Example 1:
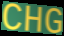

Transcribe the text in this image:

CHG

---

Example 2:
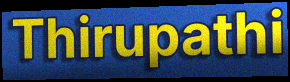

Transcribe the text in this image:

Thirupathi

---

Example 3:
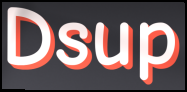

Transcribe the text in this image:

Dsup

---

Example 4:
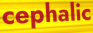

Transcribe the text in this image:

cephalic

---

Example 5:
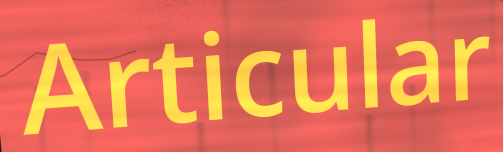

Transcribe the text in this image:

Articular